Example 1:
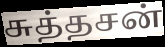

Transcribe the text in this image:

சுத்தசன்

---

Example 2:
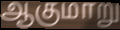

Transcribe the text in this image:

ஆகுமாறு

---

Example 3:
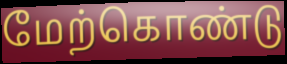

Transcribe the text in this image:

மேற்கொண்டு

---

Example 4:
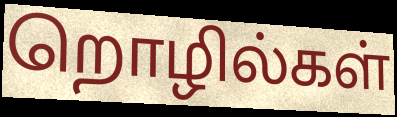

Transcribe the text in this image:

றொழில்கள்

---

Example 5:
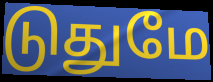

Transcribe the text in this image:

டுதுமே